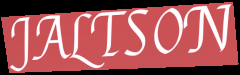
JALTSON